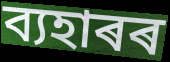
ব্যহাৰৰ